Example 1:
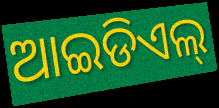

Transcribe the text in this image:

ଆଇଡିଏଲ୍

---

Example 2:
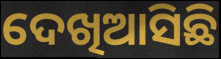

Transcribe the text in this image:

ଦେଖିଆସିଛି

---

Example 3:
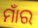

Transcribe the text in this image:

ମାଁର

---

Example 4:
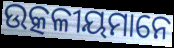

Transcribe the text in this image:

ଉତ୍କଳୀୟମାନେ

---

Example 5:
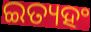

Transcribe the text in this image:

ଇତ୍ୟହଂ